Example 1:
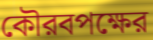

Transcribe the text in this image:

কৌরবপক্ষের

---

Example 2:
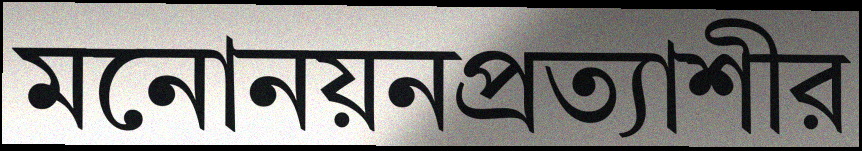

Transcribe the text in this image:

মনোনয়নপ্রত্যাশীর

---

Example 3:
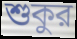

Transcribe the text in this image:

শুকুর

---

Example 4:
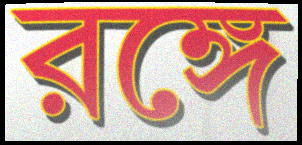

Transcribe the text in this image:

রঙ্গে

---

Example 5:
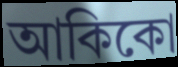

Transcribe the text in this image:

আকিকো